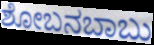
ಶೋಬನಬಾಬು